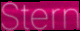
Stern